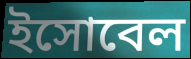
ইসোবেল